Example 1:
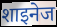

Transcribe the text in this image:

शाइनेज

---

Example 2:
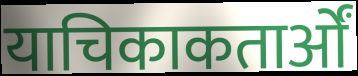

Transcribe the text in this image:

याचिकाकतार्ओं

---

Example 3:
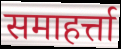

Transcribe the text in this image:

समाहर्त्ता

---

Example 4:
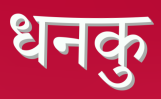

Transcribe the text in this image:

धनकु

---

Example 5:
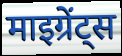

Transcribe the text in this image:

माइग्रेंट्स